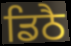
ਡਿਠੈ